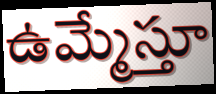
ఉమ్మేస్తూ